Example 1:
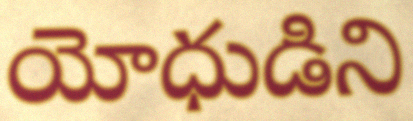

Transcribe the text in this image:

యోధుడిని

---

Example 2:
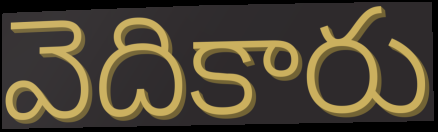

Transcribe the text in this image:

వెదికారు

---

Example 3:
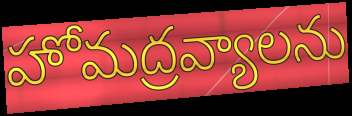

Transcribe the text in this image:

హోమద్రవ్యాలను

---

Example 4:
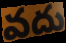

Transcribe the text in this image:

వదు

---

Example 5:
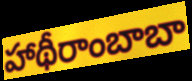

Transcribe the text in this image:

హాథీరాంబాబా